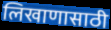
लिखाणासाठी